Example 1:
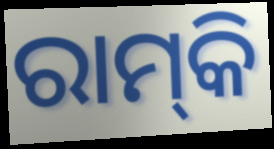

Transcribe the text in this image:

ରାମ୍‌କି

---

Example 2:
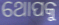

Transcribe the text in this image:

ଥୋପକୁ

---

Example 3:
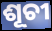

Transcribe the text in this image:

ଶୂଚୀ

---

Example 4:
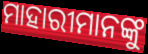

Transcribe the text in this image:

ମାହାରୀମାନଙ୍କୁ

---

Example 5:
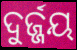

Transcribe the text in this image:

ଦୁର୍ଜ୍ଜୟ